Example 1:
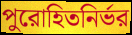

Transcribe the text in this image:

পুরোহিতনির্ভর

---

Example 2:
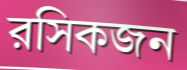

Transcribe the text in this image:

রসিকজন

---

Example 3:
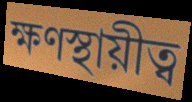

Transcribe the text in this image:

ক্ষণস্থায়ীত্ব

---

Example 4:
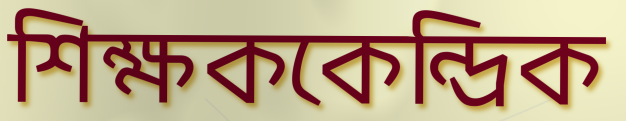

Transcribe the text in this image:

শিক্ষককেন্দ্রিক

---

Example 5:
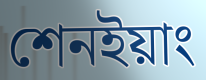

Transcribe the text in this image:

শেনইয়াং